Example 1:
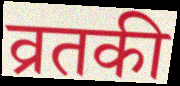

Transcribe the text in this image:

व्रतकी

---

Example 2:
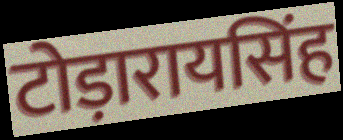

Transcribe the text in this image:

टोड़ारायसिंह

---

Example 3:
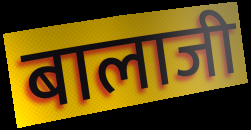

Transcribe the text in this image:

बालाजी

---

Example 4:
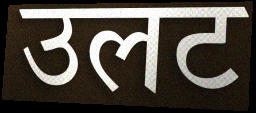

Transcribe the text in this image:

उलट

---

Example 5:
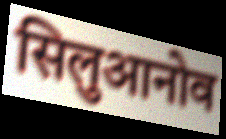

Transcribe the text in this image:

सिलुआनोव